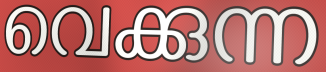
വെക്കുന്ന